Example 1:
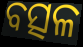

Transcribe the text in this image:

ବତ୍ସଳ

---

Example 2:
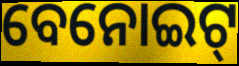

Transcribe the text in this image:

ବେନୋଇଟ୍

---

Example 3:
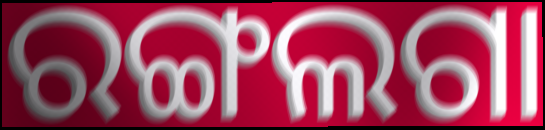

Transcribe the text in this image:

ରଙ୍ଗଲଗା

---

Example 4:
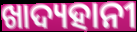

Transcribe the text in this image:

ଖାଦ୍ୟହାନୀ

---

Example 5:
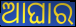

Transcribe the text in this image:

ଆଘାର